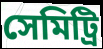
সেমিট্রি